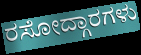
ರಸೋದ್ಗಾರಗಳು